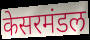
केसरमंडल